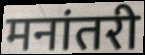
मनांतरी